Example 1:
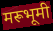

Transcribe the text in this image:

मरूभूमी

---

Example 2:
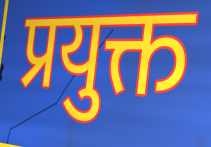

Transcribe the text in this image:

प्रयुक्त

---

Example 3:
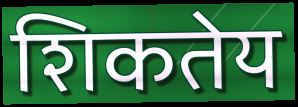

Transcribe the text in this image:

शिकतेय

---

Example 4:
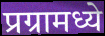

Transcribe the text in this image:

प्रग्रामध्ये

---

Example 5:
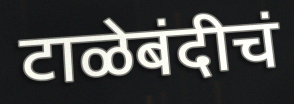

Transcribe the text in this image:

टाळेबंदीचं